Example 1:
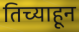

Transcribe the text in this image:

तिच्याहून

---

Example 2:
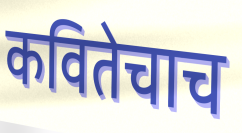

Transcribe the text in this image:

कवितेचाच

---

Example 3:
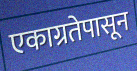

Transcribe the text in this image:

एकाग्रतेपासून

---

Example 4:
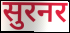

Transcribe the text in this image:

सुरनर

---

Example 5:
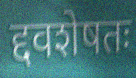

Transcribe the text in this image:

द्दवशेषतः